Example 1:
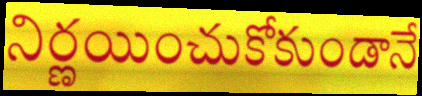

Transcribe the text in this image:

నిర్ణయించుకోకుండానే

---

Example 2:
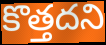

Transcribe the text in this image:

కొత్తదని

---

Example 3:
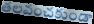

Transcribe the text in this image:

తలవంచకుండా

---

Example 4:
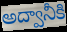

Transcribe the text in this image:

అద్వానీకి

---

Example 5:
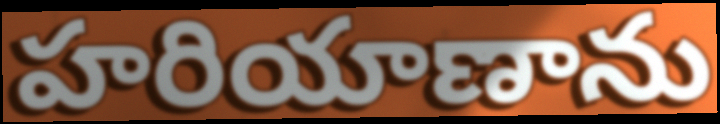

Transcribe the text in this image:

హరియాణాను